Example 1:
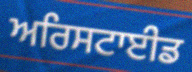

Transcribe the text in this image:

ਅਰਿਸਟਾਈਡ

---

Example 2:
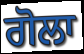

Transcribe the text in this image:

ਗੋਲਾ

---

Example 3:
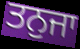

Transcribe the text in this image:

ਤਨੁਜਾ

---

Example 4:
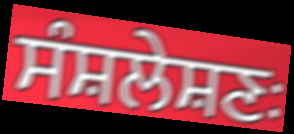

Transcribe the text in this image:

ਸੰਸ਼ਲੇਸ਼ਣਃ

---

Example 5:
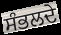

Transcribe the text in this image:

ਸੰਭਲਦੇ